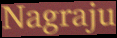
Nagraju